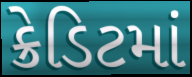
ક્રેડિટમાં